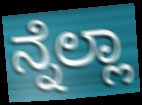
ನ್ನೆಲ್ಲಾ